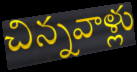
చిన్నవాళ్లు